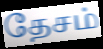
தேசம்